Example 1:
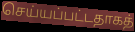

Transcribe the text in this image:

செய்யப்பட்டதாகத்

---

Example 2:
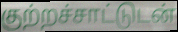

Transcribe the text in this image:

குற்றச்சாட்டுடன்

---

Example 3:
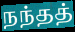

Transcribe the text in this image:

நந்தத்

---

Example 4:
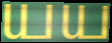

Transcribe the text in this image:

யய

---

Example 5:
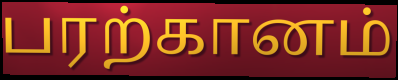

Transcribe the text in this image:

பரற்கானம்